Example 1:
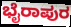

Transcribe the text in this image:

ಭೈರಾಪುರ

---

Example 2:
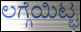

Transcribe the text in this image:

ಲಗ್ಗೆಯಿಟ್ಟ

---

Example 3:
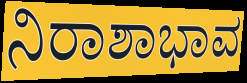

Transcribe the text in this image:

ನಿರಾಶಾಭಾವ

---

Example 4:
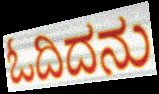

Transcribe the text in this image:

ಓದಿದನು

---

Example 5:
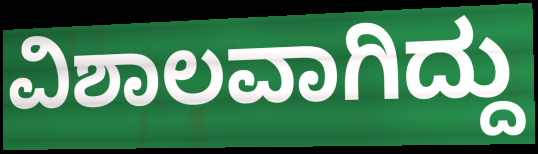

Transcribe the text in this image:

ವಿಶಾಲವಾಗಿದ್ದು